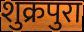
शुक्रपुरा